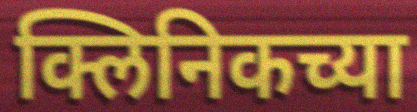
क्लिनिकच्या